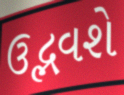
ઉદ્ભવશે